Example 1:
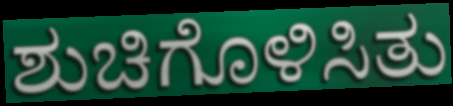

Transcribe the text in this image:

ಶುಚಿಗೊಳಿಸಿತು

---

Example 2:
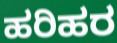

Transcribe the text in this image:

ಹರಿಹರ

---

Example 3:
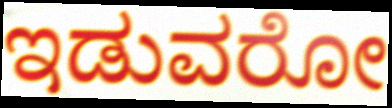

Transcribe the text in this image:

ಇಡುವರೋ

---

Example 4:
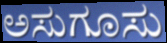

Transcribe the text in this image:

ಅಸುಗೂಸು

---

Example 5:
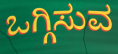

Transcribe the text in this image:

ಒಗ್ಗಿಸುವ